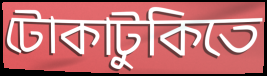
টোকাটুকিতে